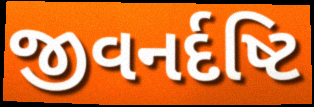
જીવનર્દષ્ટિ